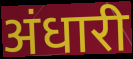
अंधारी